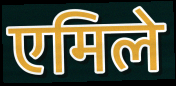
एमिले